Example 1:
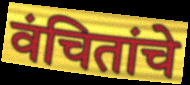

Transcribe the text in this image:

वंचितांचे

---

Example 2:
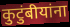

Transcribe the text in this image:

कुटुंबीयांना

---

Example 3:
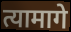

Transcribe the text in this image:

त्यामागे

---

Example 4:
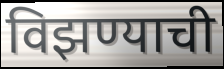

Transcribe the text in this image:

विझण्याची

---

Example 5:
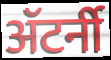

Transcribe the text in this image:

ॲटर्नी